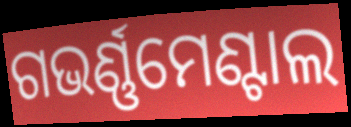
ଗଭର୍ଣ୍ଣମେଣ୍ଟାଲ